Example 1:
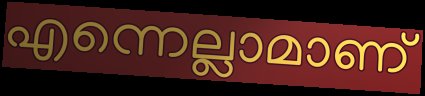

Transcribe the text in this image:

എന്നെല്ലാമാണ്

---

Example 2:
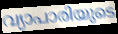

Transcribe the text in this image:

വ്യാപാരിയുടെ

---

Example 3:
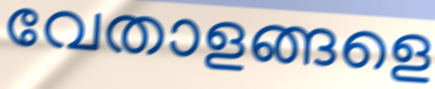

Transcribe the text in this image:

വേതാളങ്ങളെ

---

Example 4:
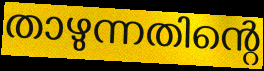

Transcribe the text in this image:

താഴുന്നതിന്റെ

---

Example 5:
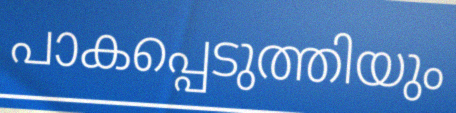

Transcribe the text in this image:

പാകപ്പെടുത്തിയും